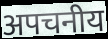
अपचनीय